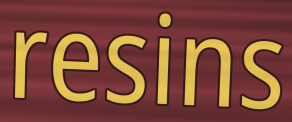
resins